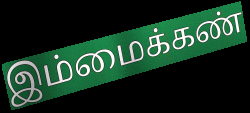
இம்மைக்கண்